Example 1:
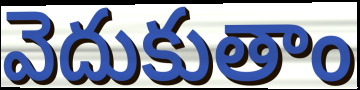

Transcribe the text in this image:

వెదుకుతాం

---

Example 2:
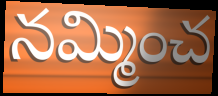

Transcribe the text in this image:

నమ్మించ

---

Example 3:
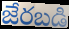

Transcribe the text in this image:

జేరబడి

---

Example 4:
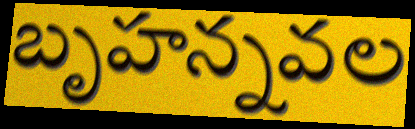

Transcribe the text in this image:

బృహన్నవల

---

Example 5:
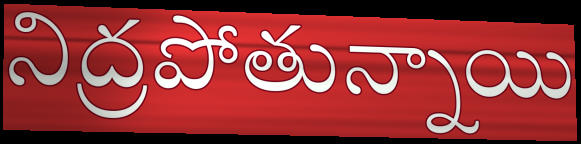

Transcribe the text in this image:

నిద్రపోతున్నాయి